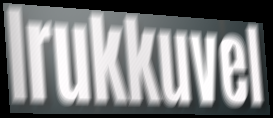
Irukkuvel